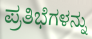
ಪ್ರತಿಭೆಗಳನ್ನು